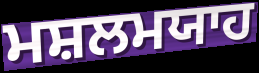
ਮਸ਼ਲਮਯਾਹ